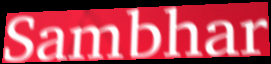
Sambhar